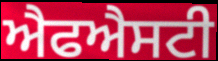
ਐਫਐਸਟੀ